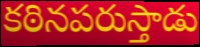
కఠినపరుస్తాడు